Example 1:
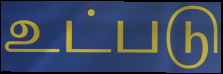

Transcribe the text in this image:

உட்படு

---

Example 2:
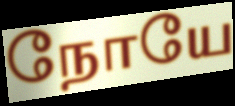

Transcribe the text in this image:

நோயே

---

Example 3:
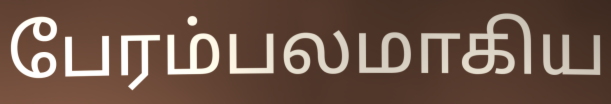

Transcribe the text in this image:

பேரம்பலமாகிய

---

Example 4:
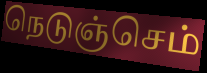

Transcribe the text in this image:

நெடுஞ்செம்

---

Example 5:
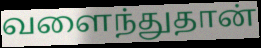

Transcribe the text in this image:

வளைந்துதான்